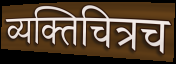
व्यक्तिचित्रच